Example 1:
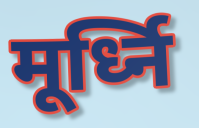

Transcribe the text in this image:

मूर्ध्नि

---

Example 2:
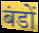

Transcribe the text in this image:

बंडों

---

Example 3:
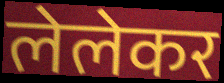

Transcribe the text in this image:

लेलेकर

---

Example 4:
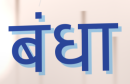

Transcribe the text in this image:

बंधा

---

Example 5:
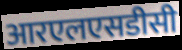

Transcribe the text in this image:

आरएलएसडीसी